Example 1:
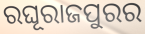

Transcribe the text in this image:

ରଘୂରାଜପୁରର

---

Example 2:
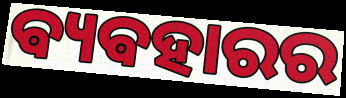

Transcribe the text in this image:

ଵ୍ୟଵହାରର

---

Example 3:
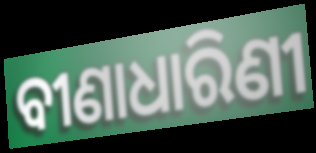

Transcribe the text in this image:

ବୀଣାଧାରିଣୀ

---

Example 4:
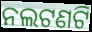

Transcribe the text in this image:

ନଲଟଣଟି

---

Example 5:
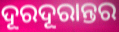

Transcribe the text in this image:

ଦୂରଦୂରାନ୍ତର